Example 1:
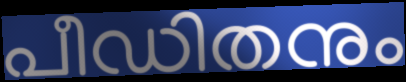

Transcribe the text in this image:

പീഡിതനും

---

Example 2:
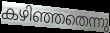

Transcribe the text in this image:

കഴിഞ്ഞതെന്നു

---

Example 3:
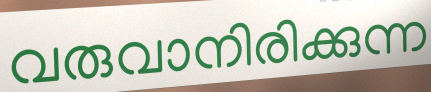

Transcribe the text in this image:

വരുവാനിരിക്കുന്ന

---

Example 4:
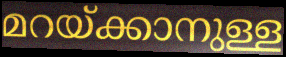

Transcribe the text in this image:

മറയ്ക്കാനുള്ള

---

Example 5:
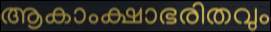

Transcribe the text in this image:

ആകാംക്ഷാഭരിതവും